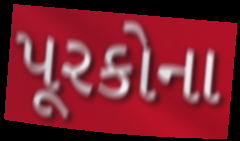
પૂરકોના